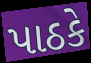
પાઠકે